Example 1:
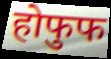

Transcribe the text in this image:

होफुफ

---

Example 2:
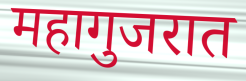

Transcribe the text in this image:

महागुजरात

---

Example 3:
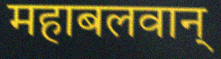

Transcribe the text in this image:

महाबलवान्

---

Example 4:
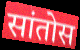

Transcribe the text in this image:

सांतोस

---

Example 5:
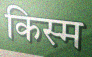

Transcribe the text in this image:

किस्‍म